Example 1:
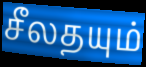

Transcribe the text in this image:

சீலதயும்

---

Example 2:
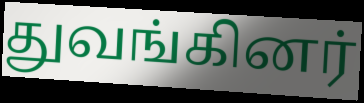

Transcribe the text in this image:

துவங்கினர்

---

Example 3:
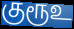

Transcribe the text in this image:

குரூஉ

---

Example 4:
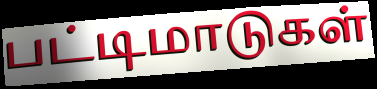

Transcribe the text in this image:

பட்டிமாடுகள்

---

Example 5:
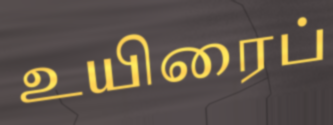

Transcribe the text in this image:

உயிரைப்